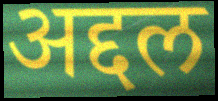
अद्दल